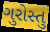
ગુરોસ્તુ